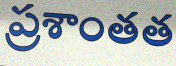
ప్రశాంతత